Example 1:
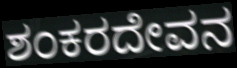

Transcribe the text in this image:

ಶಂಕರದೇವನ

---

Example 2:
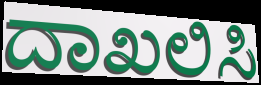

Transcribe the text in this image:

ದಾಖಲಿಸಿ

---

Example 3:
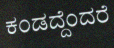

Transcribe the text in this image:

ಕಂಡದ್ದೆಂದರೆ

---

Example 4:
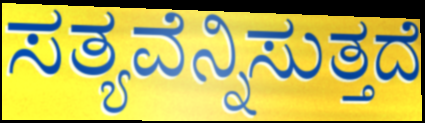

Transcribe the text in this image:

ಸತ್ಯವೆನ್ನಿಸುತ್ತದೆ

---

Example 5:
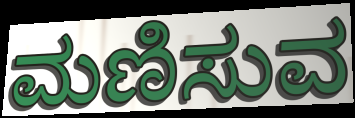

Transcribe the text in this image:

ಮಣಿಸುವ